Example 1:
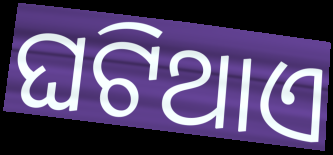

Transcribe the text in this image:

ଘଟିଥାଏ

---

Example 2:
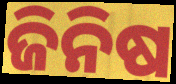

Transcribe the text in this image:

ଜିନିଷ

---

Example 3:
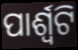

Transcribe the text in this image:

ପାର୍ଶ୍ଵଟି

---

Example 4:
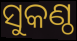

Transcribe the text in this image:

ସୁକଣ୍ଠ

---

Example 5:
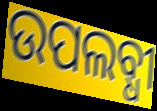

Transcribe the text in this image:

ଉପଲବ୍ଧୀ